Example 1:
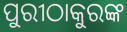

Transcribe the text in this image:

ପୁରୀଠାକୁରଙ୍କ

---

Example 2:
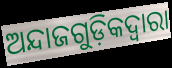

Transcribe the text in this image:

ଅନ୍ଦାଜଗୁଡ଼ିକଦ୍ୱାରା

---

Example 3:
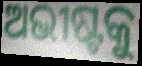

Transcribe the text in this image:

ଅଭୀଷ୍ଟକୁ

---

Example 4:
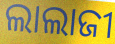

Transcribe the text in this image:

ଲାଲାଜୀ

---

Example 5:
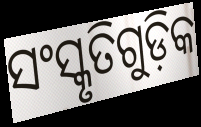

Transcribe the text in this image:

ସଂସ୍କୃତିଗୁଡ଼ିକ